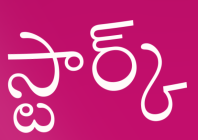
స్టార్క్